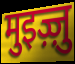
मुइज़्ज़ु